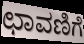
ಛಾವಣಿಗೆ